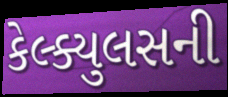
કેલ્ક્યુલસની